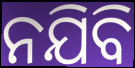
ନଯିବି